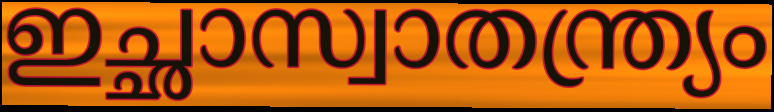
ഇച്ഛാസ്വാതന്ത്ര്യം